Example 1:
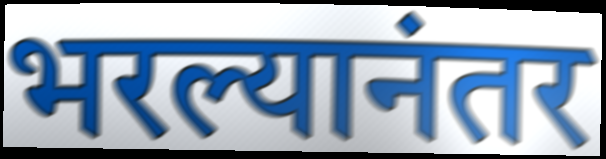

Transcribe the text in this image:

भरल्यानंतर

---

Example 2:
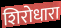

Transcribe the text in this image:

शिरोधारा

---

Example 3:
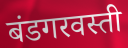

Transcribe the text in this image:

बंडगरवस्ती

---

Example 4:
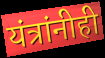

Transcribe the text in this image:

यंत्रांनीही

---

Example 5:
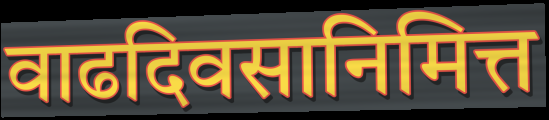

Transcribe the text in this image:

वाढदिवसानिमित्त